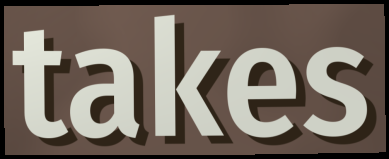
takes